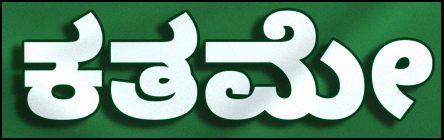
ಕತಮೇ